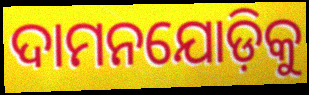
ଦାମନଯୋଡ଼ିକୁ